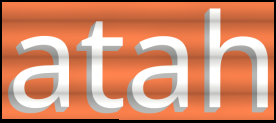
atah